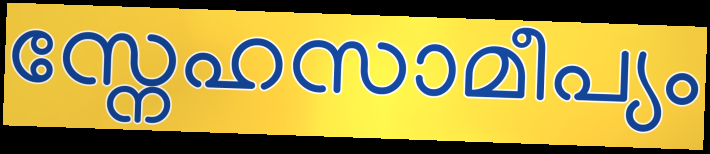
സ്നേഹസാമീപ്യം